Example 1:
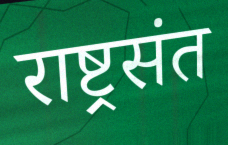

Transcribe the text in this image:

राष्ट्रसंत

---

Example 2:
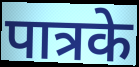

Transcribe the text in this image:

पात्रके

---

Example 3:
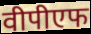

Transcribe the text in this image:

वीपीएफ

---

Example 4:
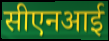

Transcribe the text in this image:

सीएनआई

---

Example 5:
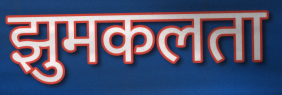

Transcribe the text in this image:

झुमकलता